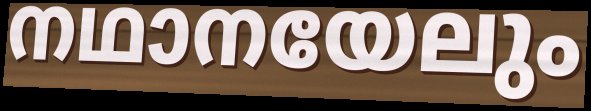
നഥാനയേലും